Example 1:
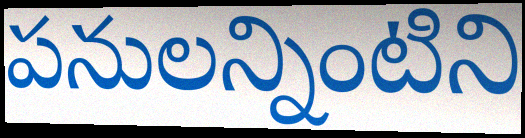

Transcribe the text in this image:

పనులన్నింటిని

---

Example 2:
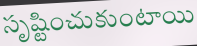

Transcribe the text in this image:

సృష్టించుకుంటాయి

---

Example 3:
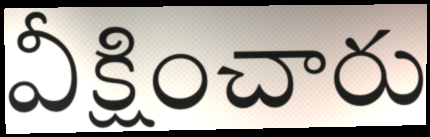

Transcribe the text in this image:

వీక్షించారు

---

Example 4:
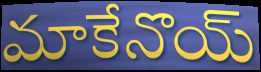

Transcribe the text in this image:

మాకేనొయ్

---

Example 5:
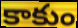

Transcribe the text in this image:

కాకుం